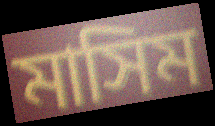
মাসিম